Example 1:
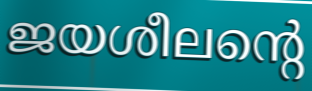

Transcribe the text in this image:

ജയശീലന്റെ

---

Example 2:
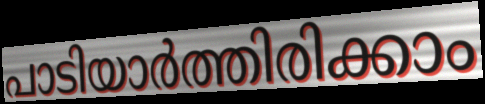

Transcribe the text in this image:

പാടിയാർത്തിരിക്കാം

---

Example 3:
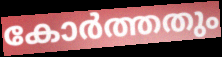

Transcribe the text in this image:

കോർത്തതും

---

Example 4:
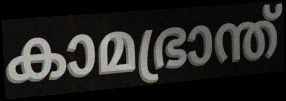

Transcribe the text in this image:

കാമഭ്രാന്ത്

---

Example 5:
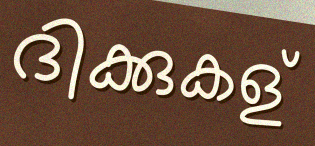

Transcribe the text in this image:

ദിക്കുകള്